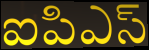
ఐపిఎస్